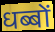
धब्बों